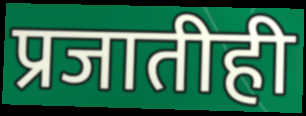
प्रजातीही